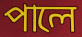
পালে